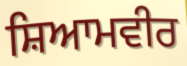
ਸ਼ਿਆਮਵੀਰ